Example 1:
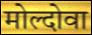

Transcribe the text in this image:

मोल्दोवा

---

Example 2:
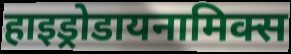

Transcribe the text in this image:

हाइड्रोडायनामिक्स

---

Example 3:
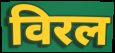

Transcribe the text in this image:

विरल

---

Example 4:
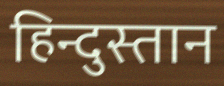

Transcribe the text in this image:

हिन्‍दुस्‍तान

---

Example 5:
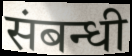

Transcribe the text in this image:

संबन्‍धी